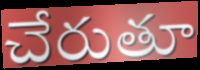
చేరుతూ